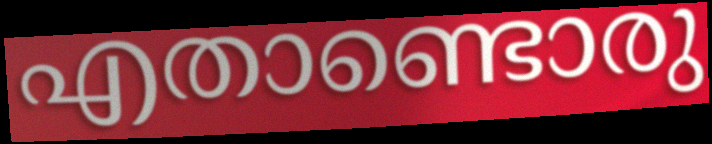
എതാണ്ടൊരു